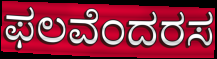
ಫಲವೆಂದರಸ